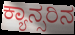
ಕ್ಯಾನ್ಸರಿನ